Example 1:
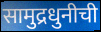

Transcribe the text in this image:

सामुद्रधुनीची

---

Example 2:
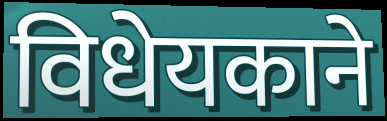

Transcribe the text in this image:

विधेयकाने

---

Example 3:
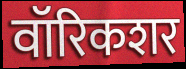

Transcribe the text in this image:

वॉरिकशर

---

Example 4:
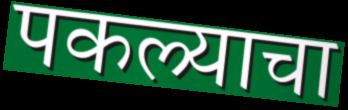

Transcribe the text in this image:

पकल्याचा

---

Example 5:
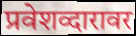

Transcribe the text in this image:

प्रवेशव्दारावर